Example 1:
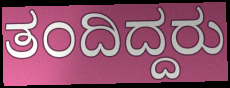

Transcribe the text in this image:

ತಂದಿದ್ದರು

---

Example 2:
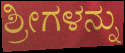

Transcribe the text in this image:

ಶ್ರೀಗಳನ್ನು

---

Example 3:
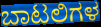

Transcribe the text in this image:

ಬಾಟಲಿಗಳ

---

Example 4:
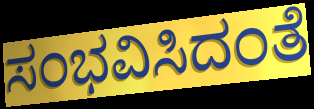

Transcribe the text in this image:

ಸಂಭವಿಸಿದಂತೆ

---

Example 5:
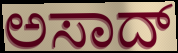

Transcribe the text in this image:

ಅಸಾದ್